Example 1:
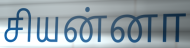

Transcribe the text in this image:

சியன்னா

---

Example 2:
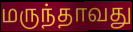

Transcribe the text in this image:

மருந்தாவது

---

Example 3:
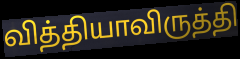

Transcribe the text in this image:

வித்தியாவிருத்தி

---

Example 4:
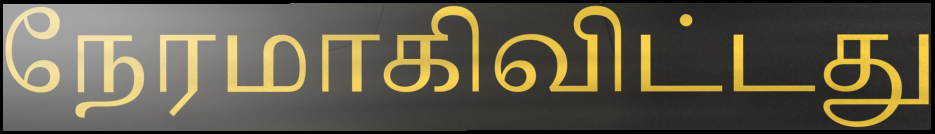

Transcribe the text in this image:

நேரமாகிவிட்டது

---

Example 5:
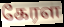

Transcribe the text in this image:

கேரள